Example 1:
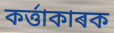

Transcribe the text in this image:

কৰ্ত্তাকাৰক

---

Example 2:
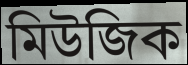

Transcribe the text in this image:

মিউজিক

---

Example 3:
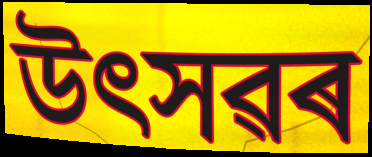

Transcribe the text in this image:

উৎসৱৰ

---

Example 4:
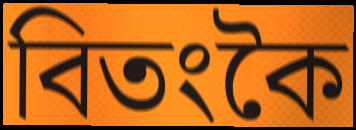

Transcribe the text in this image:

বিতংকৈ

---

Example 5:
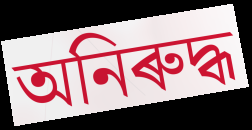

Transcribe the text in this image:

অনিৰুদ্ধ